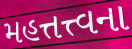
મહત્તત્ત્વના